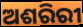
ଅଶରିରୀ